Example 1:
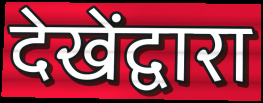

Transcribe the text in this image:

देखेंद्वारा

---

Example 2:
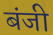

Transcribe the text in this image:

बंजी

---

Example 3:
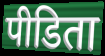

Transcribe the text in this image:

पीडिता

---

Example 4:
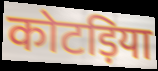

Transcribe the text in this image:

कोटड़िया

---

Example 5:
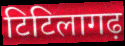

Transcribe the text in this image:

टिटिलागढ़